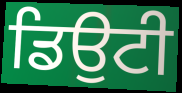
ਡਿਉਟੀ